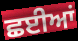
ਛਈਆਂ